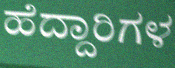
ಹೆದ್ದಾರಿಗಳ